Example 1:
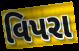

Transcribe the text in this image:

વિપરા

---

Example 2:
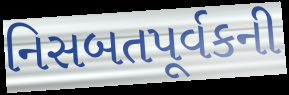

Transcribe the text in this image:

નિસબતપૂર્વકની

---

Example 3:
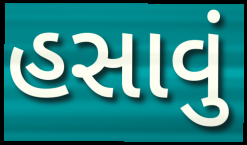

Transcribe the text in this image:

હસાવું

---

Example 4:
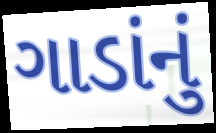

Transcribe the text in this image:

ગાડાંનું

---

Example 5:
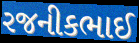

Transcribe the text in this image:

રજનીકભાઈ